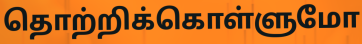
தொற்றிக்கொள்ளுமோ